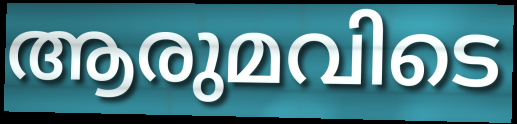
ആരുമവിടെ